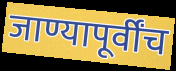
जाण्यापूर्वींच